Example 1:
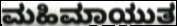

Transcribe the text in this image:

ಮಹಿಮಾಯುತ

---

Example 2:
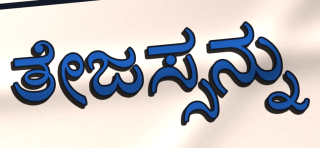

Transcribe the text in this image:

ತೇಜಸ್ಸನ್ನು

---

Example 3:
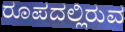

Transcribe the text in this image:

ರೂಪದಲ್ಲಿರುವ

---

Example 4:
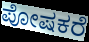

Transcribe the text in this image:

ಪೋಷಕರೆ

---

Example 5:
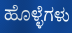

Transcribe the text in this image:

ಹೊಳ್ಳೆಗಳು